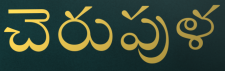
చెరుపుళ